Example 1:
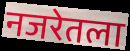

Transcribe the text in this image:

नजरेतला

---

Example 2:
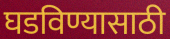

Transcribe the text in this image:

घडविण्यासाठी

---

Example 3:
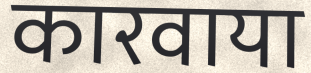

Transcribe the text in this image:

कारवाया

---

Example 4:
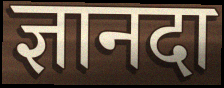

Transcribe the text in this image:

ज्ञानदा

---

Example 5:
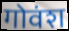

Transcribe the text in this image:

गोवंश